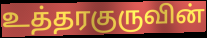
உத்தரகுருவின்